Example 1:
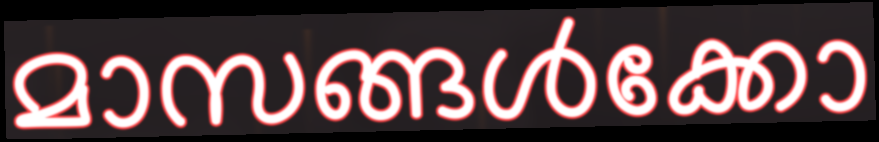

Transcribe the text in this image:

മാസങ്ങൾക്കോ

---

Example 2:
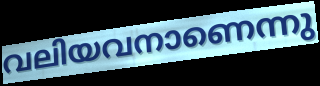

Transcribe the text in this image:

വലിയവനാണെന്നു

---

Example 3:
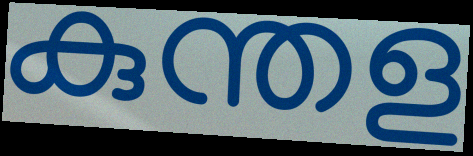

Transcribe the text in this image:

കുന്തള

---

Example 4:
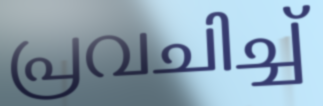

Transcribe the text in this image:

പ്രവചിച്ച്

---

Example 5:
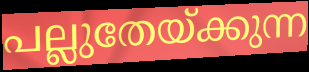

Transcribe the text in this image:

പല്ലുതേയ്ക്കുന്ന